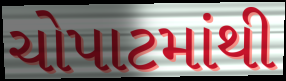
ચોપાટમાંથી